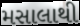
મસાલાથી